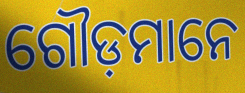
ଗୌଡ଼ମାନେ